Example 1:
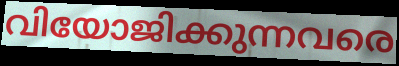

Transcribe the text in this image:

വിയോജിക്കുന്നവരെ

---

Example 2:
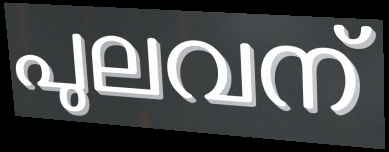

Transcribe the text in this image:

പുലവന്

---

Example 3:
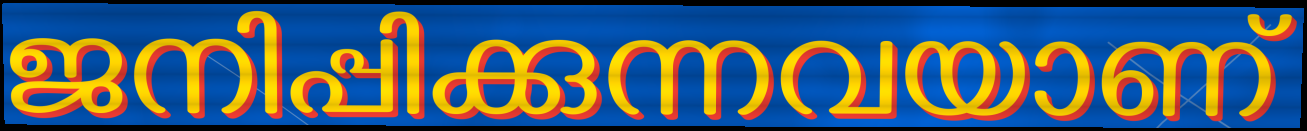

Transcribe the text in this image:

ജനിപ്പിക്കുന്നവയാണ്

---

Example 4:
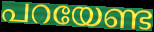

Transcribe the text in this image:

പറയേണ്ട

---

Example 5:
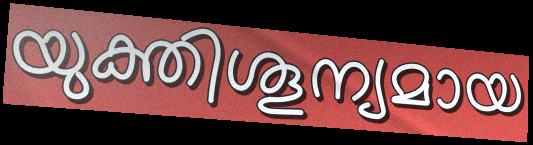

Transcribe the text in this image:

യുക്തിശൂന്യമായ